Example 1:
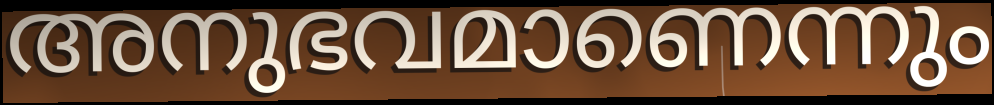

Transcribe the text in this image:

അനുഭവമാണെന്നും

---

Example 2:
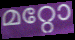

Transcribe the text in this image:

മറ്റോ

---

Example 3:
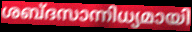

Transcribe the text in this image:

ശബ്ദസാന്നിധ്യമായി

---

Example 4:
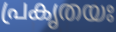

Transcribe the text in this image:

പ്രകൃതയഃ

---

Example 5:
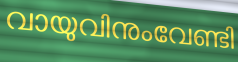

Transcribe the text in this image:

വായുവിനുംവേണ്ടി